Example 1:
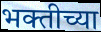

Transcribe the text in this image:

भक्तीच्या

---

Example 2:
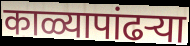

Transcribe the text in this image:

काळ्यापांढऱ्या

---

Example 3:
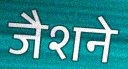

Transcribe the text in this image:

जैशने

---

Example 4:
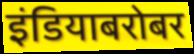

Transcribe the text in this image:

इंडियाबरोबर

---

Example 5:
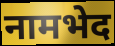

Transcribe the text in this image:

नामभेद